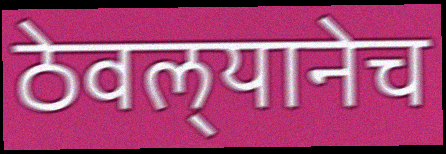
ठेवल्यानेच